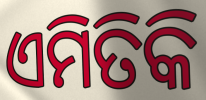
ଏମିତିକି